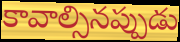
కావాల్సినప్పుడు